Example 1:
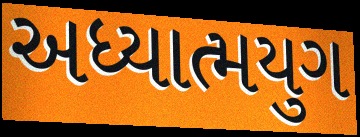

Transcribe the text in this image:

અધ્યાત્મયુગ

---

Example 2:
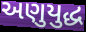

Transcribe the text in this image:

અણુયુદ્ધ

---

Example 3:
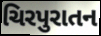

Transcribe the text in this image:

ચિરપુરાતન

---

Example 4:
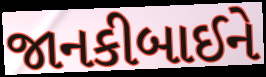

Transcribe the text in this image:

જાનકીબાઈને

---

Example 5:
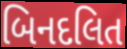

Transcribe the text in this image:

બિનદલિત